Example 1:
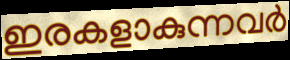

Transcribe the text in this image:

ഇരകളാകുന്നവർ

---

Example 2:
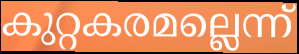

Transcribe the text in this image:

കുറ്റകരമല്ലെന്ന്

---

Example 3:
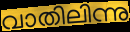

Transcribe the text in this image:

വാതിലിന്നു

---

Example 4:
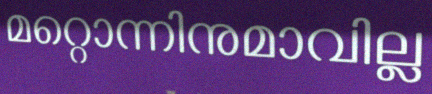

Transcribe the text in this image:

മറ്റൊന്നിനുമാവില്ല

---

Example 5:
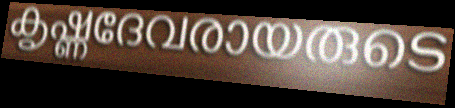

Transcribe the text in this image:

കൃഷ്ണദേവരായരുടെ